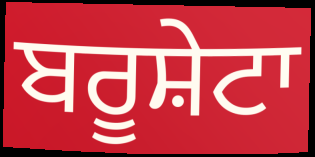
ਬਰੂਸ਼ੇਟਾ